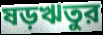
ষড়ঋতুর